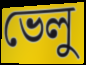
ভেলু